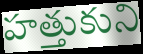
హత్తుకుని